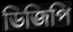
ডিজিপি